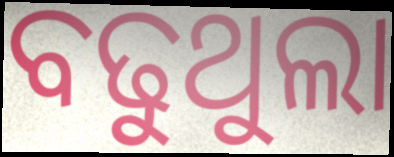
ବଢୁଥୁଲା